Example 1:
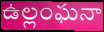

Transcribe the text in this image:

ఉల్లంఘనా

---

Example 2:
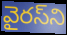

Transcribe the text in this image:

వైరస్‌ని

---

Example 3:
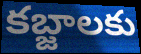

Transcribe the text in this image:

కబ్జాలకు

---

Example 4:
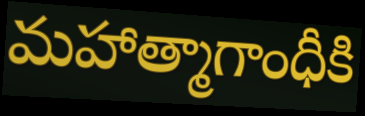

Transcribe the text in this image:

మహాత్మాగాంధీకి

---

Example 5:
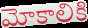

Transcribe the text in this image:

మోకాలికి